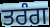
ਤਰੰਗ